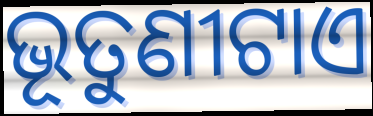
ଭୂତୁଣୀଟାଏ